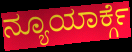
ನ್ಯೂಯಾರ್ಕ್ಗೆ